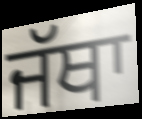
ਜੱਥਾ